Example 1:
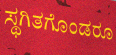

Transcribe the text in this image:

ಸ್ಥಗಿತಗೊಂಡರೂ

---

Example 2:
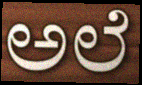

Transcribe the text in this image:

ಅಲೆ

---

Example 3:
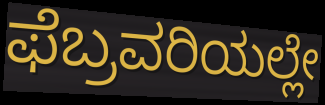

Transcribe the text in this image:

ಫೆಬ್ರವರಿಯಲ್ಲೇ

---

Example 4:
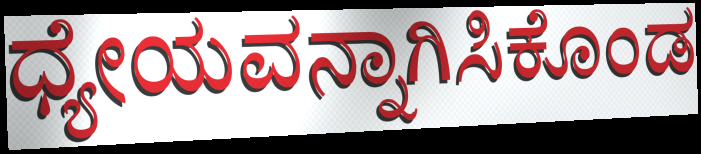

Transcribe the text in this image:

ಧ್ಯೇಯವನ್ನಾಗಿಸಿಕೊಂಡ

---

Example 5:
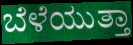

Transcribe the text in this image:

ಬೆಳೆಯುತ್ತಾ